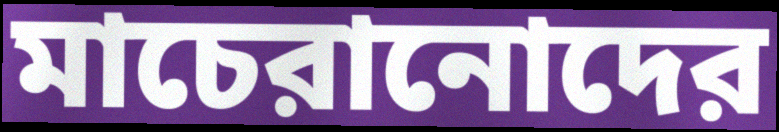
মাচেরানোদের